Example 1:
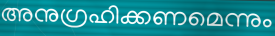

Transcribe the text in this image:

അനുഗ്രഹിക്കണമെന്നും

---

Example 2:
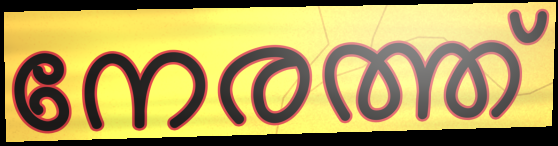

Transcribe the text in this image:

നേരത്ത്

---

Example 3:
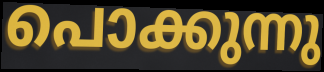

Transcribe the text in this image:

പൊക്കുന്നു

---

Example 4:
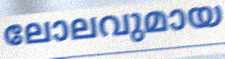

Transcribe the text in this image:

ലോലവുമായ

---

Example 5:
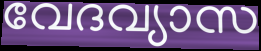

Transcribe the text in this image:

വേദവ്യാസ